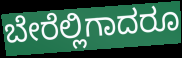
ಬೇರೆಲ್ಲಿಗಾದರೂ